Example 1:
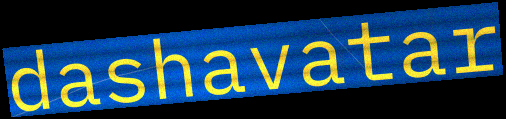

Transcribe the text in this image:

dashavatar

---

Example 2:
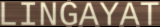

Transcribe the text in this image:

LINGAYAT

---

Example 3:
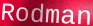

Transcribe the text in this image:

Rodman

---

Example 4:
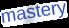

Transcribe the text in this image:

mastery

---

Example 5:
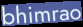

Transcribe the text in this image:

bhimrao